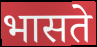
भासते